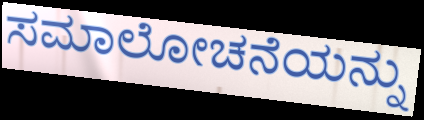
ಸಮಾಲೋಚನೆಯನ್ನು